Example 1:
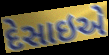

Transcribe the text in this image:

દેસાઇએ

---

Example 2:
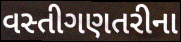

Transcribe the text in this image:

વસ્તીગણતરીના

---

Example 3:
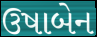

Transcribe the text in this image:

ઉષાબેન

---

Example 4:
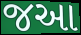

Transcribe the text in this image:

જઆ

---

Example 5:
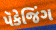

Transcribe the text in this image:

પૅકેજિંગ